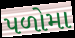
પળોમા